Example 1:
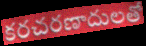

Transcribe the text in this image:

కరచరణాదులతో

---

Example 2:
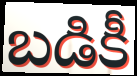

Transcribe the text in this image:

బడికీ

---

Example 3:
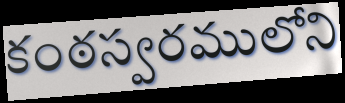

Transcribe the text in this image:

కంఠస్వరములోని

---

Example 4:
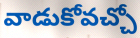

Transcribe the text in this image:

వాడుకోవచ్చో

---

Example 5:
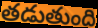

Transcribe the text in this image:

తడుతుంది